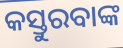
କସ୍ତୁରବାଙ୍କ